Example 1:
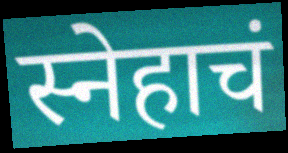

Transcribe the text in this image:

स्नेहाचं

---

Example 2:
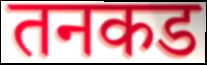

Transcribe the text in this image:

तनकड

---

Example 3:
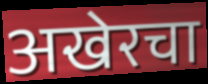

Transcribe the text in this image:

अखेरचा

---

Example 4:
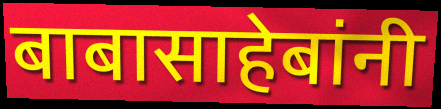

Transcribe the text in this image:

बाबासाहेबांनी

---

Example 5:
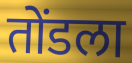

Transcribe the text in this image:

तोंडला